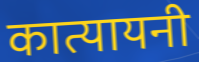
कात्यायनी